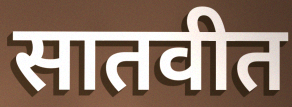
सातवीत